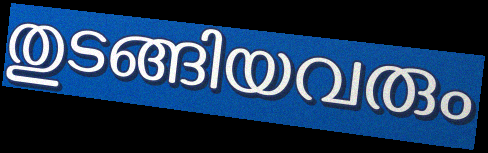
തുടങ്ങിയവരും